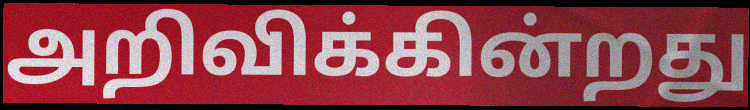
அறிவிக்கின்றது